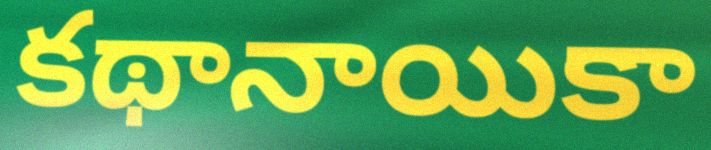
కథానాయికా